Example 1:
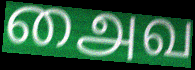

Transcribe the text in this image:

அைவ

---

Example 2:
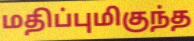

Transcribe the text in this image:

மதிப்புமிகுந்த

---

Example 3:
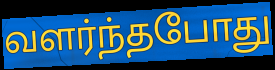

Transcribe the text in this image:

வளர்ந்தபோது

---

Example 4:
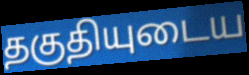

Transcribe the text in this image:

தகுதியுடைய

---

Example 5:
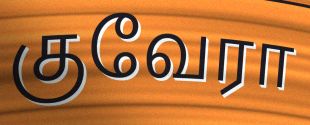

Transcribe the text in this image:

குவேரா